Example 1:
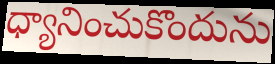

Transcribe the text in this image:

ధ్యానించుకొందును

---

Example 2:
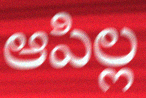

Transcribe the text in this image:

ఆపిల్ల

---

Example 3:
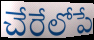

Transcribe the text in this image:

చేరేలోపే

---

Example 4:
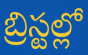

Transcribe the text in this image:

బ్రిస్టల్లో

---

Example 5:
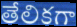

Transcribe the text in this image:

తేలికగా